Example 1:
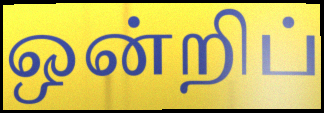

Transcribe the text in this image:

ஒன்றிப்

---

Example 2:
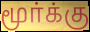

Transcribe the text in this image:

மூர்க்கு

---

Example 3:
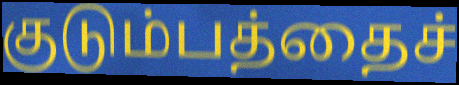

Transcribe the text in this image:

குடும்பத்தைச்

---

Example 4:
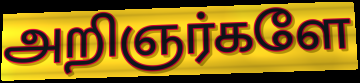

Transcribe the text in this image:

அறிஞர்களே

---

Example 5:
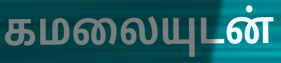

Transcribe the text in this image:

கமலையுடன்